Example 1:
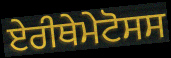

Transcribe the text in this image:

ਏਰੀਥੇਮੇਟੋਸਸ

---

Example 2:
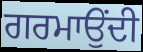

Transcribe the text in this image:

ਗਰਮਾਉਂਦੀ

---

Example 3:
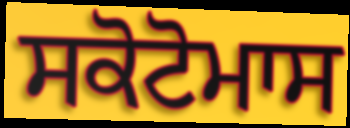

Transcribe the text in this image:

ਸਕੋਟੋਮਾਸ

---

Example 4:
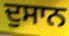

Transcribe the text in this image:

ਦੁਸਾਨ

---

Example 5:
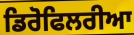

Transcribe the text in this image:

ਡਿਰੋਫਿਲਰੀਆ